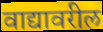
वाद्यावरील